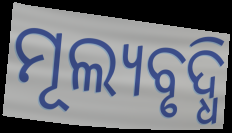
ମୂଲ୍ୟବୃଦ୍ଧି